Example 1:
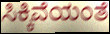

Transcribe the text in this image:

ಸಿಕ್ಕಿವೆಯಂತೆ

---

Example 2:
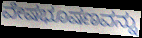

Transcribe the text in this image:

ವೇಷಭೂಷಣವನ್ನು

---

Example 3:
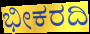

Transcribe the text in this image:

ಭೀಕರದಿ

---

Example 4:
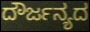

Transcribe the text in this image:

ದೌರ್ಜನ್ಯದ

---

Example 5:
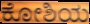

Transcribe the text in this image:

ಕೋಶಿಯ